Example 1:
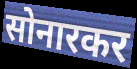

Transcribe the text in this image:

सोनारकर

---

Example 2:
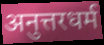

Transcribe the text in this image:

अनुत्तरधर्म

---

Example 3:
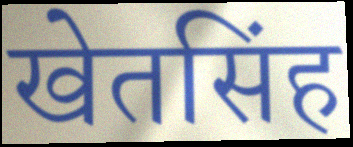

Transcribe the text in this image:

खेतसिंह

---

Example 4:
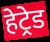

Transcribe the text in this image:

हेट्रेड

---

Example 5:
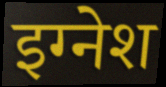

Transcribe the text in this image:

इग्नेश